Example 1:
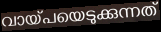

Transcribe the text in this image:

വായ്പയെടുക്കുന്നത്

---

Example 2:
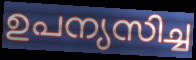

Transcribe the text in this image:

ഉപന്യസിച്ച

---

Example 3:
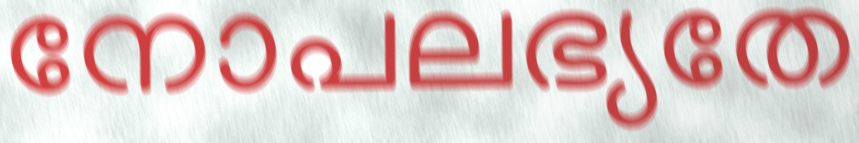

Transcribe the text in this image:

നോപലഭ്യതേ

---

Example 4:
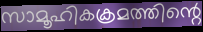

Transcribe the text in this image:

സാമൂഹികക്രമത്തിന്റെ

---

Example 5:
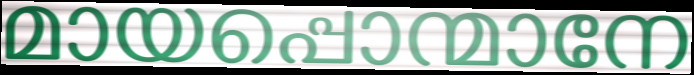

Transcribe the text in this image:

മായപ്പൊന്മാനേ